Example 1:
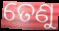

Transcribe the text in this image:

ତେଣୁ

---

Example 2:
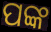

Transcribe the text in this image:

ପଙ୍କ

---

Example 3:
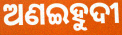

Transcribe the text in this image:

ଅଣଇହୁଦୀ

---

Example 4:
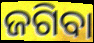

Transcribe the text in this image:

ଜଗିବା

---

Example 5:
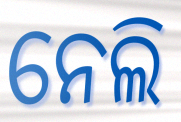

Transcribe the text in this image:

ନେଲି